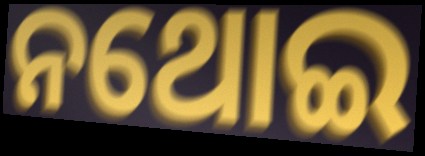
ନଥୋଇ